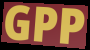
GPP